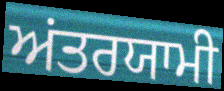
ਅਂਤਰਯਾਮੀ